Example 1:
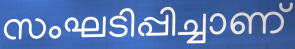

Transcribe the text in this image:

സംഘടിപ്പിച്ചാണ്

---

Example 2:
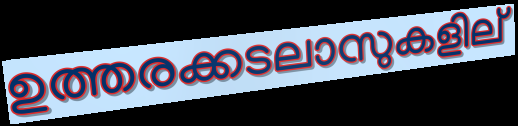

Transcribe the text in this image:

ഉത്തരക്കടലാസുകളില്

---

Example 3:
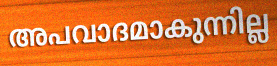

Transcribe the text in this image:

അപവാദമാകുന്നില്ല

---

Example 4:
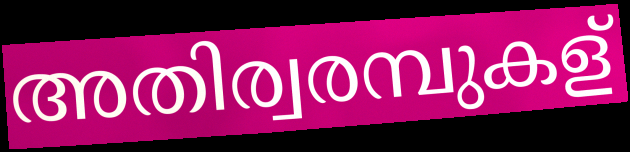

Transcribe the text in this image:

അതിര്വരമ്പുകള്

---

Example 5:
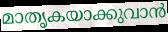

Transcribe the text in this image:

മാതൃകയാക്കുവാൻ